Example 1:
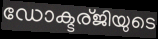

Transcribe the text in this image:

ഡോക്ടര്ജിയുടെ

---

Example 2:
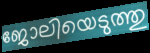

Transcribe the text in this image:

ജോലിയെടുത്തു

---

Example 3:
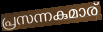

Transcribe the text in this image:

പ്രസന്നകുമാര്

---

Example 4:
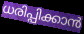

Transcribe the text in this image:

ധരിപ്പിക്കാൻ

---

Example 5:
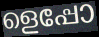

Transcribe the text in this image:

ളെപ്പോ